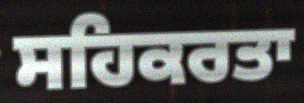
ਸਹਿਕਰਤਾ